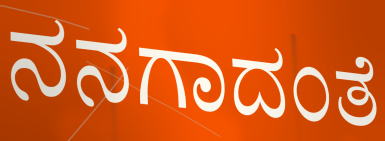
ನನಗಾದಂತೆ